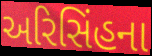
અરિસિંહના